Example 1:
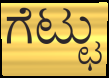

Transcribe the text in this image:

ಗೆಟ್ಟು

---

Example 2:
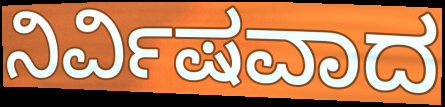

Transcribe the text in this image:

ನಿರ್ವಿಷವಾದ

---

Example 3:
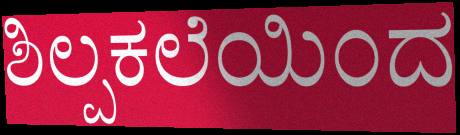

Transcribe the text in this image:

ಶಿಲ್ಪಕಲೆಯಿಂದ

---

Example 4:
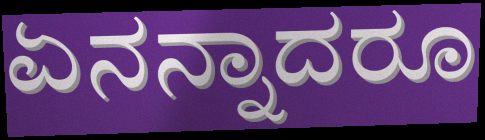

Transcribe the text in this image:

ಏನನ್ನಾದರೂ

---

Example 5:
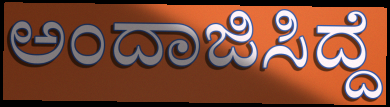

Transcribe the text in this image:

ಅಂದಾಜಿಸಿದ್ದೆ